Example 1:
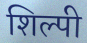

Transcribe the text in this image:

शिल्पी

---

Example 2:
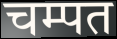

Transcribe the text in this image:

चम्पत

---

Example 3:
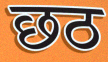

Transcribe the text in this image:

छठ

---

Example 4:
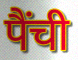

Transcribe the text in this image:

पैंची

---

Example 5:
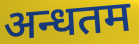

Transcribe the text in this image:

अन्धतम